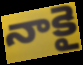
నాకై